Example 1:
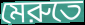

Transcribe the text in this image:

মেরুতে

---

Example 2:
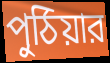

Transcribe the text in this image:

পুঠিয়ার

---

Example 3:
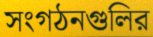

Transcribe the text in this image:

সংগঠনগুলির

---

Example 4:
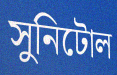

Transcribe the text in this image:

সুনিটোল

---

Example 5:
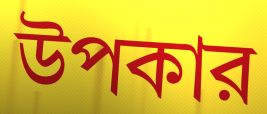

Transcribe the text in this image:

উপকার